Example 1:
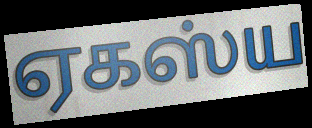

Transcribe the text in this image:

ஏகஸ்ய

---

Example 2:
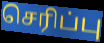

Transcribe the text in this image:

செரிப்பு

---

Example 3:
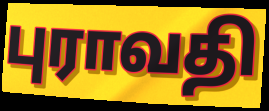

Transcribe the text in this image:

புராவதி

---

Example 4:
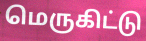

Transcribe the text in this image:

மெருகிட்டு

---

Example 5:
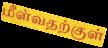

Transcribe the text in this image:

மீள்வதற்குள்